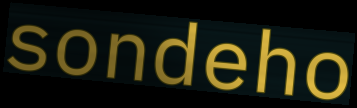
sondeho